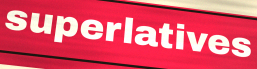
superlatives